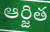
ఆర్జిత